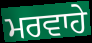
ਮਰਵਾਹੇ